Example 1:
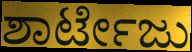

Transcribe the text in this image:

ಶಾರ್ಟೇಜು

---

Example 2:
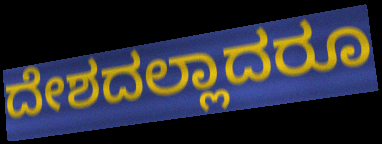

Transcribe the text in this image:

ದೇಶದಲ್ಲಾದರೂ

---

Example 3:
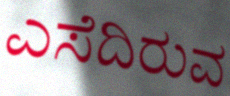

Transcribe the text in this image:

ಎಸೆದಿರುವ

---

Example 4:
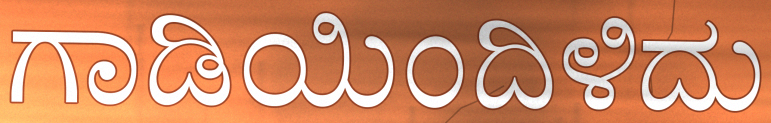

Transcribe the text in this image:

ಗಾಡಿಯಿಂದಿಳಿದು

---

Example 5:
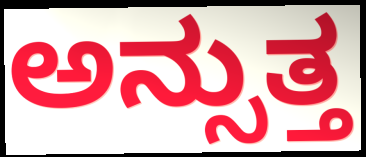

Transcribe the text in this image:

ಅನ್ಸುತ್ತ